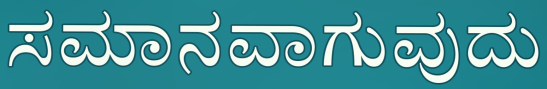
ಸಮಾನವಾಗುವುದು